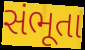
સંભૂતા